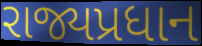
રાજ્યપ્રધાન